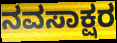
ನವಸಾಕ್ಷರ